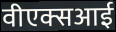
वीएक्सआई